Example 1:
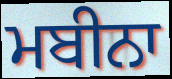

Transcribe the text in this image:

ਮਬੀਨਾ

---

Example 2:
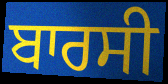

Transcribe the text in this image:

ਬਾਰਸੀ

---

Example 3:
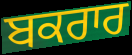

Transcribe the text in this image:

ਬਕਰਾਰ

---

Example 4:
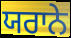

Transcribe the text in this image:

ਯਰਾਨੇ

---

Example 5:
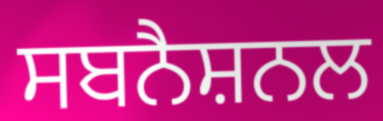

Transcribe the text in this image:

ਸਬਨੈਸ਼ਨਲ